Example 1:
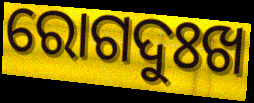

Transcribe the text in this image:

ରୋଗଦୁଃଖ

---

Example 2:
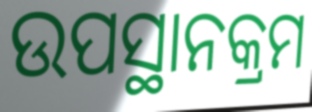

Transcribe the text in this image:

ଉପସ୍ଥାନକ୍ରମ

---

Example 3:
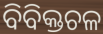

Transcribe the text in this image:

ବିବିକ୍ତଚଳ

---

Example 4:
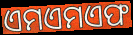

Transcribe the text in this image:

ଏମଏମଏଫ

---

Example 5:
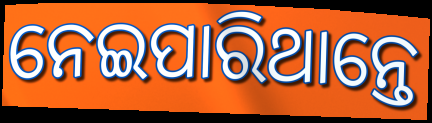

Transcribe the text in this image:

ନେଇପାରିଥାନ୍ତେ